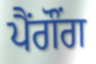
ਪੈਂਗੌਂਗ